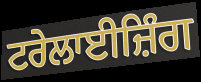
ਟਰੇਲਾਈਜ਼ਿੰਗ